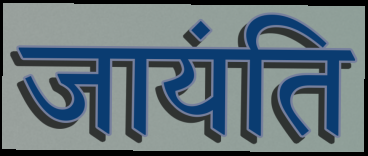
जायंति